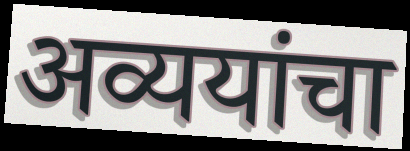
अव्ययांचा